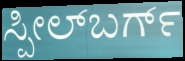
ಸ್ಪೀಲ್‌ಬರ್ಗ್